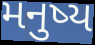
મનુષ્ય